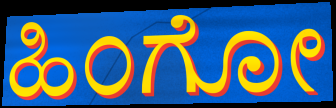
ಹಿಂಗೋ